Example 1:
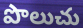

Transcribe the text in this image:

పొలుచు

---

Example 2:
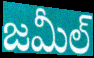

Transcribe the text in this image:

జమీల్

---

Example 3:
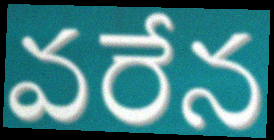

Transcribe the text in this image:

వరేన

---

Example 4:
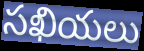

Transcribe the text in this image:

సఖియలు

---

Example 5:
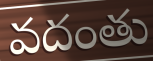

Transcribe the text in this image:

వదంతు